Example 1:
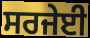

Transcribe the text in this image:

ਸਰਜੇਈ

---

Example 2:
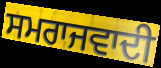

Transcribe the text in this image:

ਸਮਰਾਜਵਾਦੀ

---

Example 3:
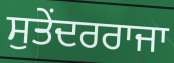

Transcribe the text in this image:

ਸੁਤੇਂਦਰਰਾਜਾ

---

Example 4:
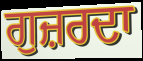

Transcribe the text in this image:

ਗੁਜ਼ਰਦਾ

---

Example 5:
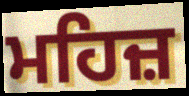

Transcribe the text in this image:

ਮਹਿਜ਼